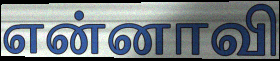
என்னாவி